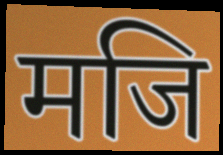
मजि